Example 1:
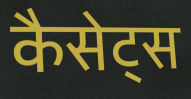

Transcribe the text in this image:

कैसेट्स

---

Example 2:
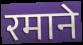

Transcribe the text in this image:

रमाने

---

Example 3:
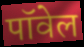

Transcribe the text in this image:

पॉवेल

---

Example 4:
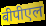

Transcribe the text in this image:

बीपीएल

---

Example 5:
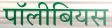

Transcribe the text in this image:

पॉलीबियस